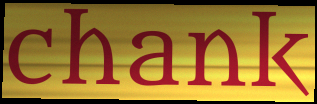
chank